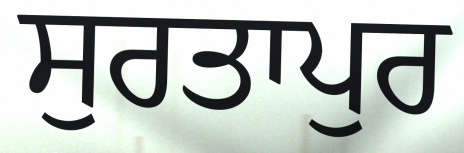
ਸੁਰਤਾਪੁਰ